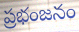
ప్రభంజనం